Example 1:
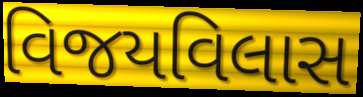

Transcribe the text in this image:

વિજયવિલાસ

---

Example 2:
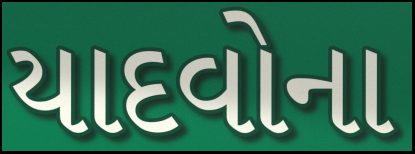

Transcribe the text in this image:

યાદવોના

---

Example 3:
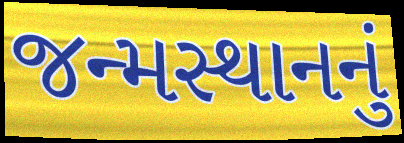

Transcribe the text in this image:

જન્મસ્થાનનું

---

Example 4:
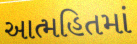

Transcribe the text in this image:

આત્મહિતમાં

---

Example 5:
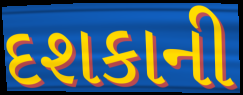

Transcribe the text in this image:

દશકાની